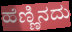
ಹೆಣ್ಣಿನದು